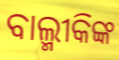
ବାଲ୍ମୀକିଙ୍କ